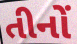
તીનોં